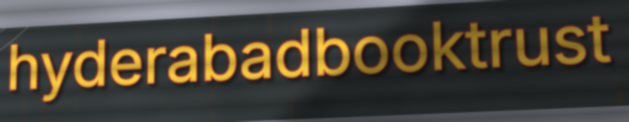
hyderabadbooktrust